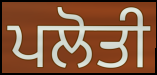
ਪਲੋਤੀ